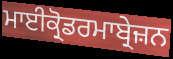
ਮਾਈਕ੍ਰੋਡਰਮਾਬ੍ਰੇਜ਼ਨ